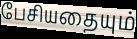
பேசியதையும்